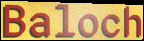
Baloch